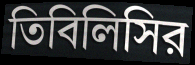
তিবিলিসির